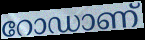
റോഡാണ്